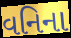
વનિના